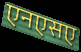
एनएसए